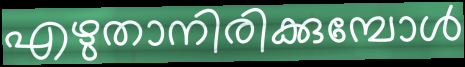
എഴുതാനിരിക്കുമ്പോൾ